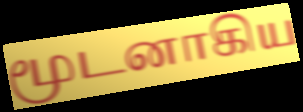
மூடனாகிய